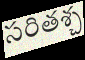
సరితశ్చ